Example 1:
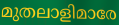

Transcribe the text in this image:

മുതലാളിമാരേ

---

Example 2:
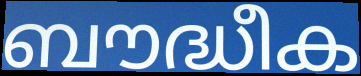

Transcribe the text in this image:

ബൗദ്ധീക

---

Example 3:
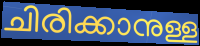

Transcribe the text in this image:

ചിരിക്കാനുള്ള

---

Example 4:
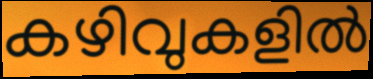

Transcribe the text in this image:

കഴിവുകളിൽ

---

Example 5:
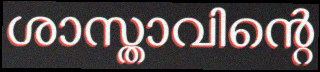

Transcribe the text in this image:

ശാസ്താവിന്റെ